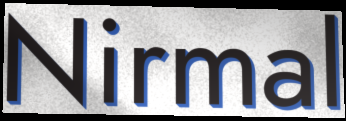
Nirmal